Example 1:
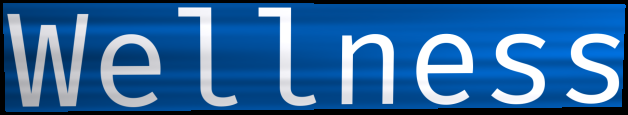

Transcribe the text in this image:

Wellness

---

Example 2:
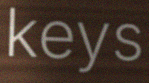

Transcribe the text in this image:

keys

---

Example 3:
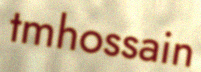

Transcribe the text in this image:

tmhossain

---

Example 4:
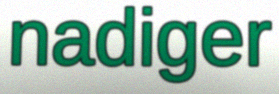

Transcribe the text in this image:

nadiger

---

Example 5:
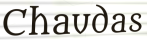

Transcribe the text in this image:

Chaudas